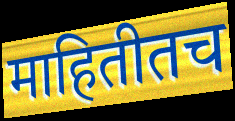
माहितीतच